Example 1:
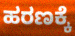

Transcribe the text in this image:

ಹರಣಕ್ಕೆ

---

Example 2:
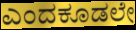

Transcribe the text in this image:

ಎಂದಕೂಡಲೇ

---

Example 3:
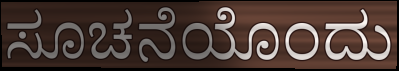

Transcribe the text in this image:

ಸೂಚನೆಯೊಂದು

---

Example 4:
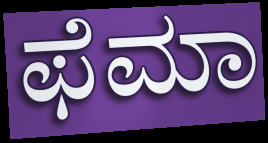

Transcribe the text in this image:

ಫೆಮಾ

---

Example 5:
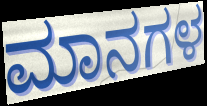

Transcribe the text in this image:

ಮಾನಗಳ